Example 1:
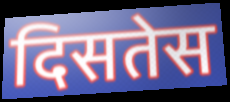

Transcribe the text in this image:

दिसतेस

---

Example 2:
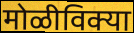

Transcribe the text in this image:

मोळीविक्या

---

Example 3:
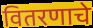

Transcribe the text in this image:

वितरणाचे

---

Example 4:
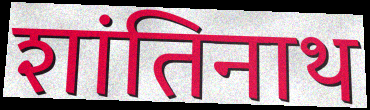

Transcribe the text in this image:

शांतिनाथ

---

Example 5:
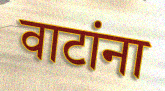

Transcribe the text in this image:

वाटांना